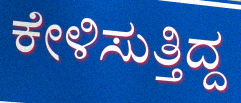
ಕೇಳಿಸುತ್ತಿದ್ದ